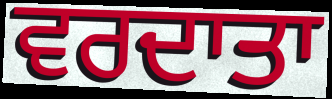
ਵਰਦਾਤਾ